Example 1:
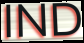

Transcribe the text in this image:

IND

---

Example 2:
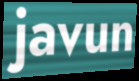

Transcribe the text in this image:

javun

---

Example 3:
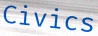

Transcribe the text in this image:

Civics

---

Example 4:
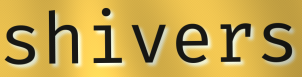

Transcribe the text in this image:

shivers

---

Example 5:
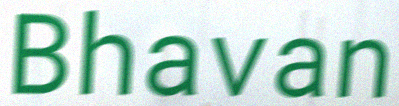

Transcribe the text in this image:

Bhavan